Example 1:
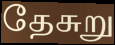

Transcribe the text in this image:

தேசுறு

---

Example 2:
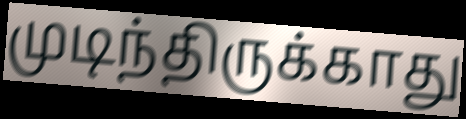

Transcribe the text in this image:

முடிந்திருக்காது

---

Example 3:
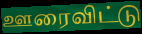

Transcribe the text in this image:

ஊரைவிட்டு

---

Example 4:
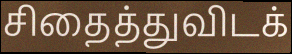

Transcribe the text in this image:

சிதைத்துவிடக்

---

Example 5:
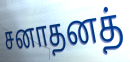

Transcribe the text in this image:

சனாதனத்